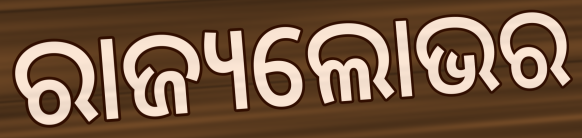
ରାଜ୍ୟଲୋଭର